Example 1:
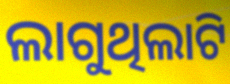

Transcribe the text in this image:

ଲାଗୁଥିଲାଟି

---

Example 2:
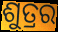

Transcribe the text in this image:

ଶୁତ୍ରର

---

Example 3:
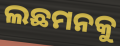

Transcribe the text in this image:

ଲଛମନକୁ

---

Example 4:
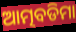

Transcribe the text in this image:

ଆତ୍ମବଡିମା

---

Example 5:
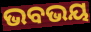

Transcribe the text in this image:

ଭବଭୟ